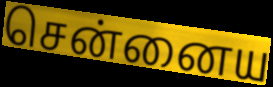
சென்னைய